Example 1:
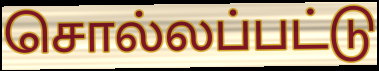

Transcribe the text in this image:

சொல்லப்பட்டு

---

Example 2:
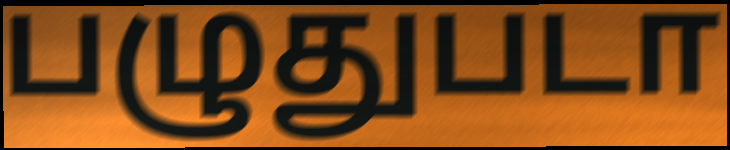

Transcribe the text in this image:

பழுதுபடா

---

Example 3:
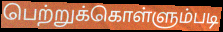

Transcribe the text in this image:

பெற்றுக்கொள்ளும்படி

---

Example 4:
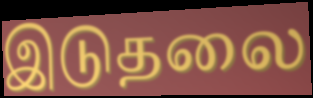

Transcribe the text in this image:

இடுதலை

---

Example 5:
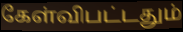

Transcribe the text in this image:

கேள்விபட்டதும்